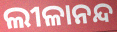
ଲୀଳାନନ୍ଦ